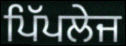
ਪਿੱਪਲੇਜ